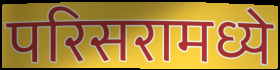
परिसरामध्ये